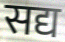
सद्य